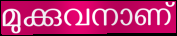
മുക്കുവനാണ്